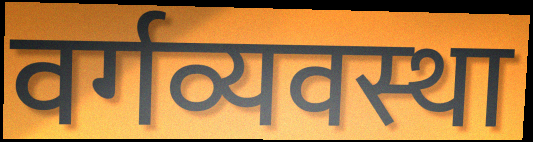
वर्गव्यवस्था